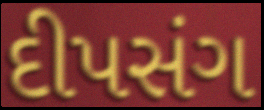
દીપસંગ